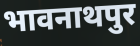
भावनाथपुर